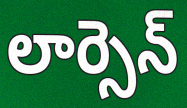
లార్సెన్